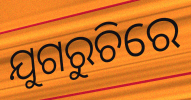
ଯୁଗରୁଚିରେ